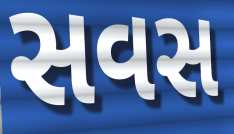
સવસ